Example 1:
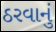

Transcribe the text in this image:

ઠરવાનું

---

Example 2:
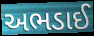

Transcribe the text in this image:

અભડાઈ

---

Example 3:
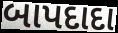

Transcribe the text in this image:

બાપદાદા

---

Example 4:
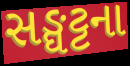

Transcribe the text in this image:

સઙ્ઘટ્ટના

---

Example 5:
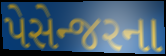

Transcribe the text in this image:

પેસેન્જરના